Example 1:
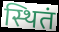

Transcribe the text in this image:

स्थितं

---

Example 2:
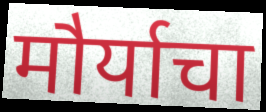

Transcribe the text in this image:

मौर्याचा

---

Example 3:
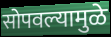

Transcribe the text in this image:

सोपवल्यामुळे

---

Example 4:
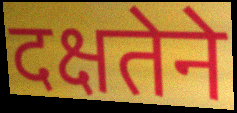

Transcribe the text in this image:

दक्षतेने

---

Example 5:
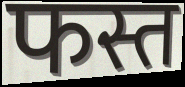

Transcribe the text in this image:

फस्त